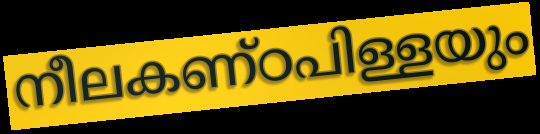
നീലകണ്ഠപിള്ളയും